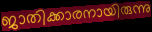
ജാതിക്കാരനായിരുന്നു